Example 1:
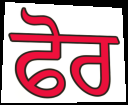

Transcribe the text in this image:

ਫੋਰ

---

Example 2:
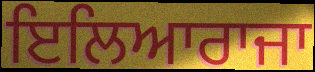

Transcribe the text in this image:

ਇਲਿਆਰਾਜਾ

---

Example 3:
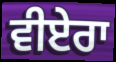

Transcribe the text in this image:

ਵੀਏਰਾ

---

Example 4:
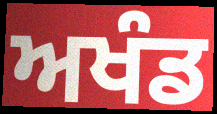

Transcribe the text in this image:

ਅਖੰਡ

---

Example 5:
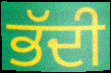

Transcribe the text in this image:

ਭੱਦੀ